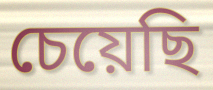
চেয়েছি